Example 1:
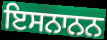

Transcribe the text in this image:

ਇਸਨਾਨਨ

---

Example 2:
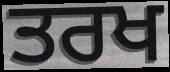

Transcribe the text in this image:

ਤਰਖ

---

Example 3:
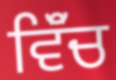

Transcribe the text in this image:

ਵਿੱੰਚ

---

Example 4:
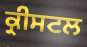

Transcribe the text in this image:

ਕ੍ਰੀਸਟਲ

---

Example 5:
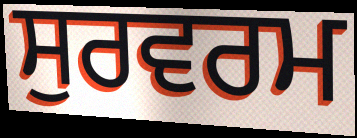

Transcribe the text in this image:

ਸੁਰਵਰਮ